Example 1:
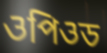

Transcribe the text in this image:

ওপিওড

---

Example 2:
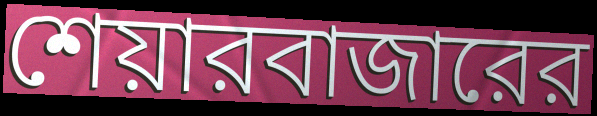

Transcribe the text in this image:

শেয়ারবাজারের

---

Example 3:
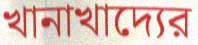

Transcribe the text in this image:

খানাখাদ্যের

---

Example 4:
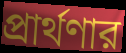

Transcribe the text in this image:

প্রার্থণার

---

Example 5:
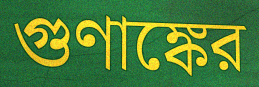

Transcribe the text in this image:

গুণাঙ্কের